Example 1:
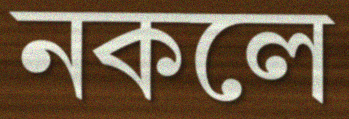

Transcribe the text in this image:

নকলে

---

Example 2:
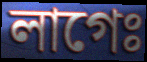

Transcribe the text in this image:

লাগেঃ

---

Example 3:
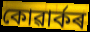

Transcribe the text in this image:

কোৱাৰ্কৰ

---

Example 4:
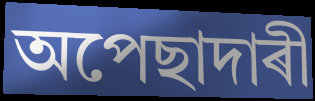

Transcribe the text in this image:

অপেছাদাৰী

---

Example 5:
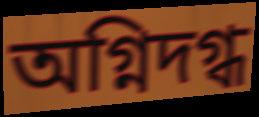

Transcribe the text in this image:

অগ্নিদগ্ধ